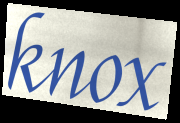
knox